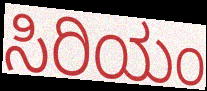
ಸಿರಿಯಂ